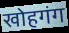
खोहगंग